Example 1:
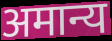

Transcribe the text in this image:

अमान्य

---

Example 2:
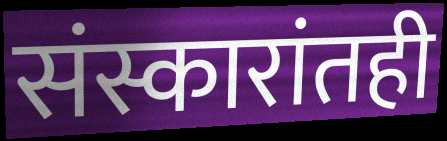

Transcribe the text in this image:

संस्कारांतही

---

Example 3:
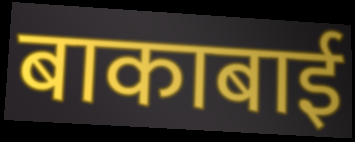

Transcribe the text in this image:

बाकाबाई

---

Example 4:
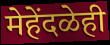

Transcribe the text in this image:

मेहेंदळेही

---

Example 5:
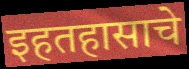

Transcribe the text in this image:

इहतहासाचे